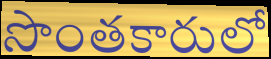
సొంతకారులో